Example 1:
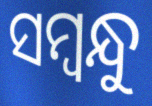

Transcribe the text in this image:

ସମ୍ବନ୍ଧୁ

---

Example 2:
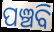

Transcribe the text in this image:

ପଞ୍ଚବି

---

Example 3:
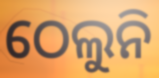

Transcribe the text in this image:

ଠେଲୁନି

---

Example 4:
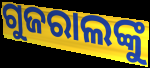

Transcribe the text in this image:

ଗୁଜରାଲଙ୍କୁ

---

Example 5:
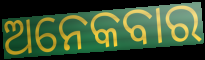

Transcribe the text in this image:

ଅନେକବାର